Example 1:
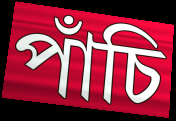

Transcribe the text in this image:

পাঁচি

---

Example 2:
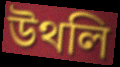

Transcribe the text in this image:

উথলি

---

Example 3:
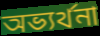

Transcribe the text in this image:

অভ্যৰ্থনা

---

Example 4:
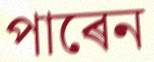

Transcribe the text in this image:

পাৰেন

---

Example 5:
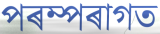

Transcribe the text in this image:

পৰম্পৰাগত